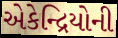
એકેન્દ્રિયોની